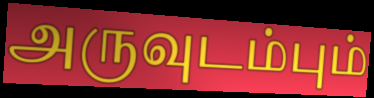
அருவுடம்பும்